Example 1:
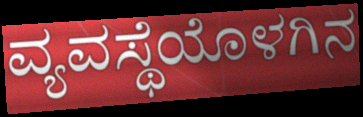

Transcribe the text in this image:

ವ್ಯವಸ್ಥೆಯೊಳಗಿನ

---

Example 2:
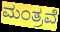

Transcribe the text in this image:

ಮಂತ್ರವೆ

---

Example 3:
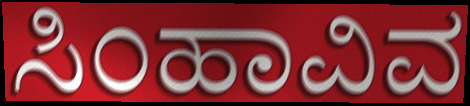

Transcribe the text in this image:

ಸಿಂಹಾವಿವ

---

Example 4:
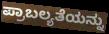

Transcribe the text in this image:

ಪ್ರಾಬಲ್ಯತೆಯನ್ನು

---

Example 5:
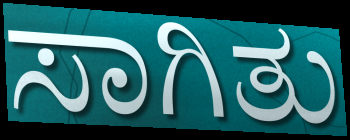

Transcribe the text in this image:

ಸಾಗಿತು